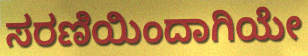
ಸರಣಿಯಿಂದಾಗಿಯೇ